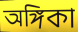
অঙ্গিকা